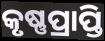
କୃଷ୍ଣପ୍ରାପ୍ତି